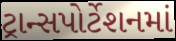
ટ્રાન્સપોર્ટેશનમાં